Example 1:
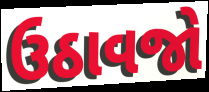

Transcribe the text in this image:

ઉઠાવજો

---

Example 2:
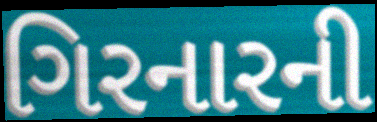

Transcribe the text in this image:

ગિરનારની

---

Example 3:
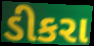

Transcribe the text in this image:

ડીકરા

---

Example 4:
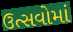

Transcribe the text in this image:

ઉત્સવોમાં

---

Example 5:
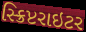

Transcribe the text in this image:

સ્ક્રિપ્ટરાઇટર